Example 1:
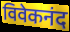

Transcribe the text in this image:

विवेकनंद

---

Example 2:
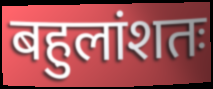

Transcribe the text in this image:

बहुलांशतः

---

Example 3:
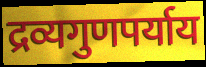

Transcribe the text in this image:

द्रव्यगुणपर्याय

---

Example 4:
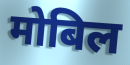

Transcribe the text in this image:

मोबिल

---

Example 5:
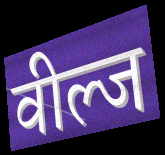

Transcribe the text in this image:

वील्ज